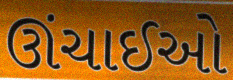
ઊંચાઈઓ